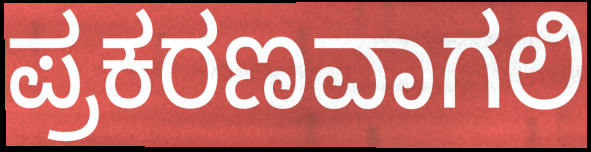
ಪ್ರಕರಣವಾಗಲಿ